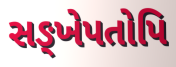
સઙ્ખેપતોપિ